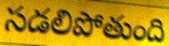
సడలిపోతుంది